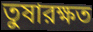
তুষারক্ষত